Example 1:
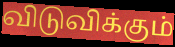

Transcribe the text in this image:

விடுவிக்கும்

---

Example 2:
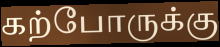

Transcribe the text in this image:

கற்போருக்கு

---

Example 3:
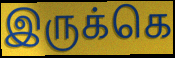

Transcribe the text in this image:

இருக்கெ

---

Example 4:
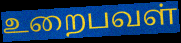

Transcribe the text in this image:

உறைபவள்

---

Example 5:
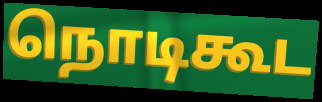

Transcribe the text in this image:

நொடிகூட